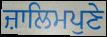
ਜ਼ਾਲਿਮਪੁਣੇ